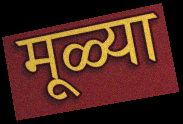
मूळ्या